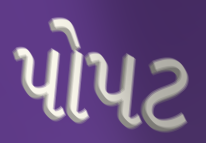
પોપટ